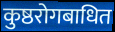
कुष्ठरोगबाधित